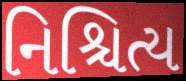
નિશ્ચિત્ય